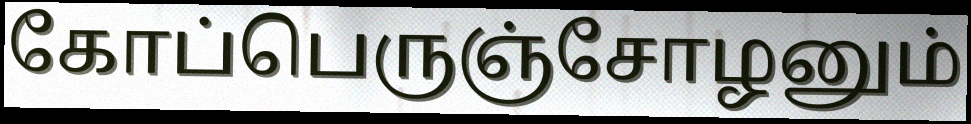
கோப்பெருஞ்சோழனும்